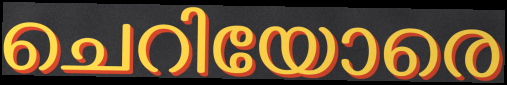
ചെറിയോരെ